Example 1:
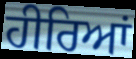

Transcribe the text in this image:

ਹੀਰਿਆਂ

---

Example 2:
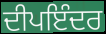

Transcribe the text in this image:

ਦੀਪਇੰਦਰ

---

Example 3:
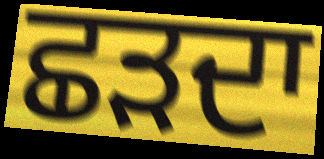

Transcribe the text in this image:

ਛੜਦਾ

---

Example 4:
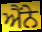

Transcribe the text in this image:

ਐਂਨੇ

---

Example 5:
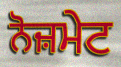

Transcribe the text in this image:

ਨੋਜ਼ਮੇਟ